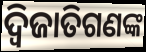
ଦ୍ୱିଜାତିଗଣଙ୍କ